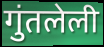
गुंतलेली